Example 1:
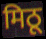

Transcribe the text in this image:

मिठू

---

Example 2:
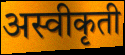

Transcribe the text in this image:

अस्वीकृती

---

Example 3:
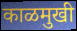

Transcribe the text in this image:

काळमुखी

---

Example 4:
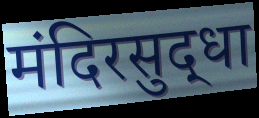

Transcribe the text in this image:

मंदिरसुद्धा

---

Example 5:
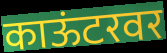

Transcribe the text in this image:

काऊंटरवर